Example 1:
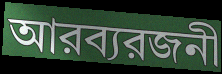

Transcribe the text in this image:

আরব্যরজনী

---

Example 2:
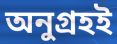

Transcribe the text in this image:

অনুগ্রহই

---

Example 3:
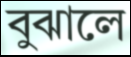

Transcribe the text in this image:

বুঝালে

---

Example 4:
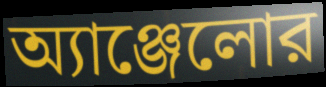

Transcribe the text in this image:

অ্যাঞ্জেলোর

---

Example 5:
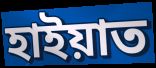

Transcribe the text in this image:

হাইয়াত